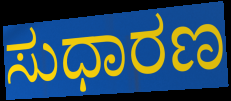
ಸುಧಾರಣ